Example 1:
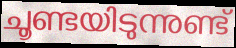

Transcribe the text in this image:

ചൂണ്ടയിടുന്നുണ്ട്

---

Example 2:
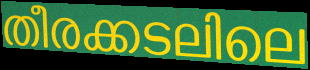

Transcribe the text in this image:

തീരക്കടലിലെ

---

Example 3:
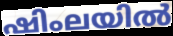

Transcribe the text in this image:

ഷിംലയിൽ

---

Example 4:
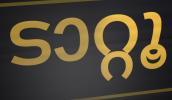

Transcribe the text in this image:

ടാറ്റൂ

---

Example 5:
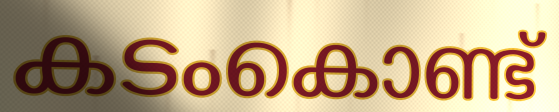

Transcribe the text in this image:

കടംകൊണ്ട്